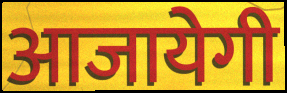
आजायेगी